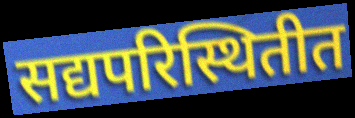
सद्यपरिस्थितीत